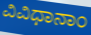
ವಿವಿಧಾನಾಂ